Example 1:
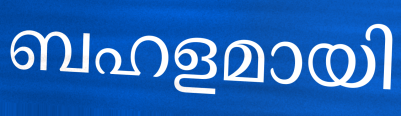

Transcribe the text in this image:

ബഹളമായി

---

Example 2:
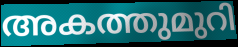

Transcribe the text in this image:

അകത്തുമുറി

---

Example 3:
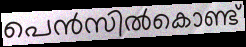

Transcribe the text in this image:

പെൻസിൽകൊണ്ട്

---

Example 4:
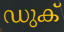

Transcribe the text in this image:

ഡുക്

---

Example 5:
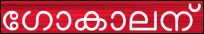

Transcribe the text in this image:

ഗോകാലന്